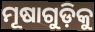
ମୂଷାଗୁଡ଼ିକୁ